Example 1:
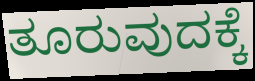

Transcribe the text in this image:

ತೂರುವುದಕ್ಕೆ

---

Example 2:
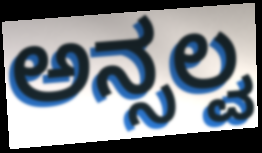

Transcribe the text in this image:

ಅನ್ಸಲ್ವ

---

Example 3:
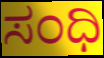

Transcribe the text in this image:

ಸಂಧಿ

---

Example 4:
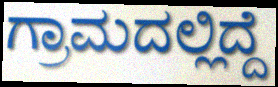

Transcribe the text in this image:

ಗ್ರಾಮದಲ್ಲಿದ್ದೆ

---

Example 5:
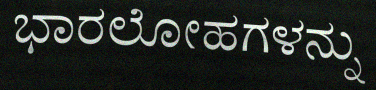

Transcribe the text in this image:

ಭಾರಲೋಹಗಳನ್ನು